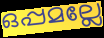
ഒപ്പമല്ലേ